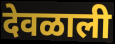
देवळाली